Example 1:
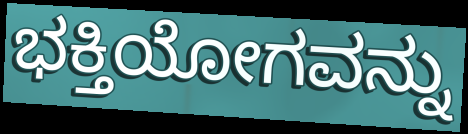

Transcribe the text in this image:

ಭಕ್ತಿಯೋಗವನ್ನು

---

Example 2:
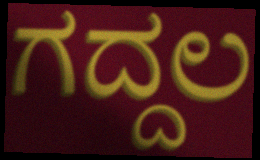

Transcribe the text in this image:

ಗದ್ದಲ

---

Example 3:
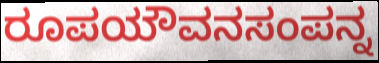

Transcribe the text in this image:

ರೂಪಯೌವನಸಂಪನ್ನ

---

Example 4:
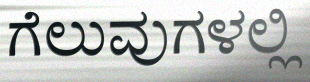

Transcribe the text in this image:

ಗೆಲುವುಗಳಲ್ಲಿ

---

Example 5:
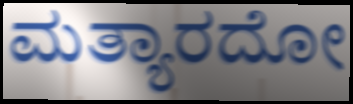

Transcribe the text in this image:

ಮತ್ಯಾರದೋ